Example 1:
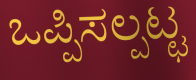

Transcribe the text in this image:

ಒಪ್ಪಿಸಲ್ಪಟ್ಟ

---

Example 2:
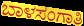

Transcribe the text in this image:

ಬಾಳಸಂಗಾತಿ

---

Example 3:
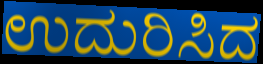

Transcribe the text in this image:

ಉದುರಿಸಿದ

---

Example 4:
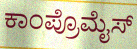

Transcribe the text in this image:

ಕಾಂಪ್ರೊಮೈಸ್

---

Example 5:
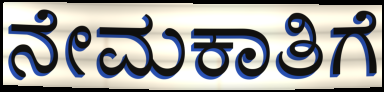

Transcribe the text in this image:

ನೇಮಕಾತಿಗೆ